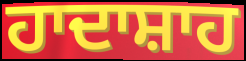
ਹਾਦਾਸ਼ਾਹ